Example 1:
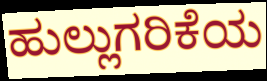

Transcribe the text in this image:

ಹುಲ್ಲುಗರಿಕೆಯ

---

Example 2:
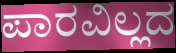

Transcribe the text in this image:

ಪಾರವಿಲ್ಲದ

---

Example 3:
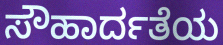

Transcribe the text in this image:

ಸೌಹಾರ್ದತೆಯ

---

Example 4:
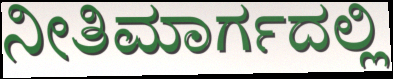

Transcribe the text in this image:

ನೀತಿಮಾರ್ಗದಲ್ಲಿ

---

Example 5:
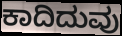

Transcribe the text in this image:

ಕಾದಿದುವು